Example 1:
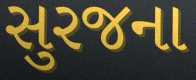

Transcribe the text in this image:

સુરજના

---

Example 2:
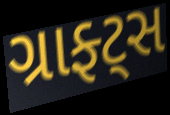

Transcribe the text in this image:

ગ્રાફ્ટ્સ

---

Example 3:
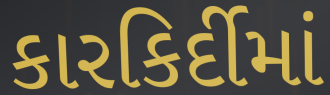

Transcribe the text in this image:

કારકિર્દીમાં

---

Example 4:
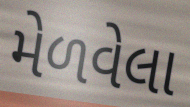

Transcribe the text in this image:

મેળવેલા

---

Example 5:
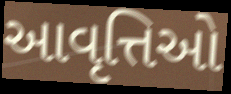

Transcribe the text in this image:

આવૃત્તિઓ